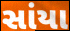
સાંયા